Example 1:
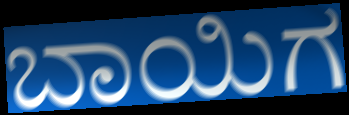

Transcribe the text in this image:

ಬಾಯಿಗ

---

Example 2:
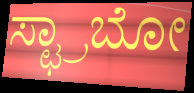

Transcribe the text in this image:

ಸ್ಟ್ರಾಬೋ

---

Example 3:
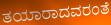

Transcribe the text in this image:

ತಯಾರಾದವರಂತೆ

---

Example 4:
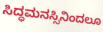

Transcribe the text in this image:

ಸಿದ್ಧಮನಸ್ಸಿನಿಂದಲೂ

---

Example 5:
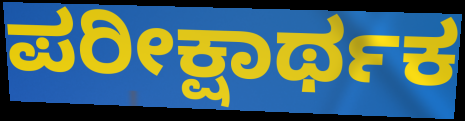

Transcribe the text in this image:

ಪರೀಕ್ಷಾರ್ಥಕ